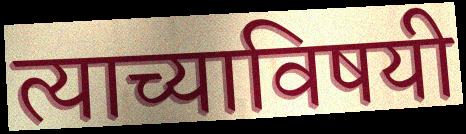
त्याच्याविषयी